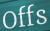
Offs